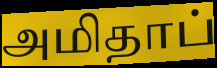
அமிதாப்